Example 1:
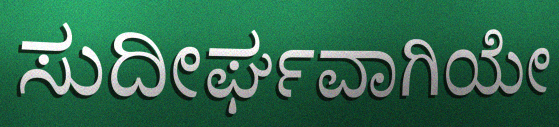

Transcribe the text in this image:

ಸುದೀರ್ಘವಾಗಿಯೇ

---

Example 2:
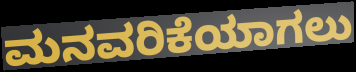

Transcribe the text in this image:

ಮನವರಿಕೆಯಾಗಲು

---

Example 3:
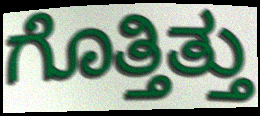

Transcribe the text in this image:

ಗೊತ್ತಿತ್ತು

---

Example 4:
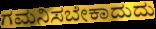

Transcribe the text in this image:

ಗಮನಿಸಬೇಕಾದುದು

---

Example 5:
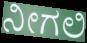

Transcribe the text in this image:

ನೀಗಲಿ